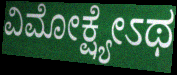
ವಿಮೋಕ್ಷ್ಯೇಽಥ